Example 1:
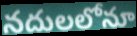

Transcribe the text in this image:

నదులలోనూ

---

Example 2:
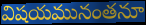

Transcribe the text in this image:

విషయమునంతనూ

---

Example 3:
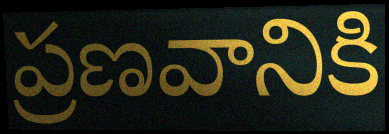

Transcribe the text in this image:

ప్రణవానికి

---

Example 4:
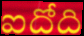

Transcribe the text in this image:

ఐదోది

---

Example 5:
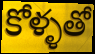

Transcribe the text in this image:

కోళ్ళతో